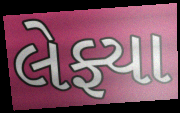
લેફ્યા